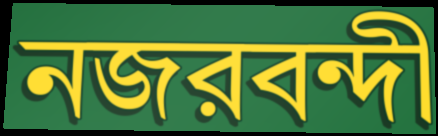
নজরবন্দী